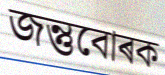
জন্তুবোৰক